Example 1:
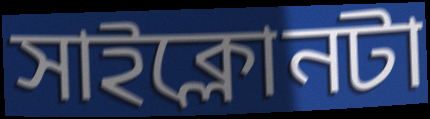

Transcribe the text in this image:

সাইক্লোনটা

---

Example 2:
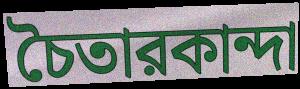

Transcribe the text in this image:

চৈতারকান্দা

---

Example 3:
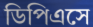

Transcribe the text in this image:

ডিপিএসে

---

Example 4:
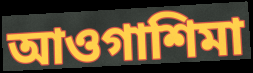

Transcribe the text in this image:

আওগাশিমা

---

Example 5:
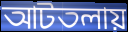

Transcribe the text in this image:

আটতলায়